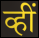
व्हीं